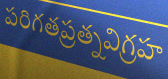
పరిగతప్రత్నవిగ్రహ